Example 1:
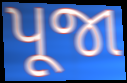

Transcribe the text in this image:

પૂજા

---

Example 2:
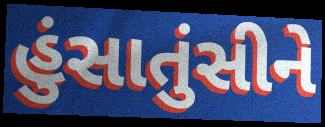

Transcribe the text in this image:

હુંસાતુંસીને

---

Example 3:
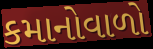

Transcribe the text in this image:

કમાનોવાળો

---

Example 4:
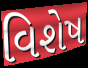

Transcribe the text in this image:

વિશેષ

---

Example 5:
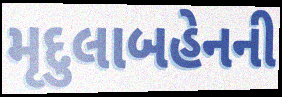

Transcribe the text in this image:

મૃદુલાબહેનની